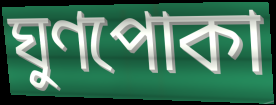
ঘুণপোকা